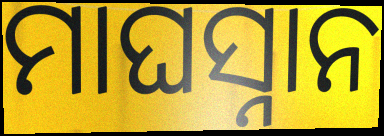
ମାଘସ୍ନାନ